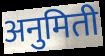
अनुमिती